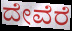
ದೇವೆರೆ